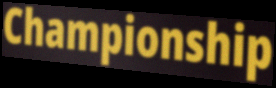
Championship